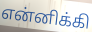
என்னிக்கி